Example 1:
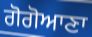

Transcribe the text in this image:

ਗੋਗੋਆਣਾ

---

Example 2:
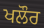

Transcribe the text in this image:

ਖਲੌਰ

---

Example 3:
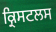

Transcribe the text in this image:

ਕ੍ਰਿਸਟਲਸ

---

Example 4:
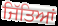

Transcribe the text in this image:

ਜਿੱਤਿਆਂ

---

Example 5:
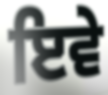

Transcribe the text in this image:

ਇਵੇ